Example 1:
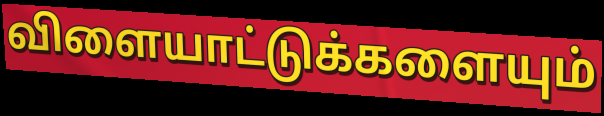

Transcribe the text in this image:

விளையாட்டுக்களையும்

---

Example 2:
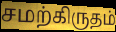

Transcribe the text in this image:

சமற்கிருதம்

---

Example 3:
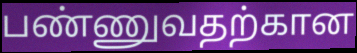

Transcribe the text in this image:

பண்ணுவதற்கான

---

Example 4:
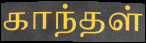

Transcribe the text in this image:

காந்தள்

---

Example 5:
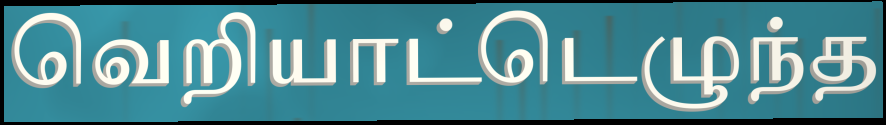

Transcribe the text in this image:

வெறியாட்டெழுந்த